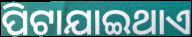
ପିଟାଯାଇଥାଏ